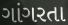
ગાંગરતા